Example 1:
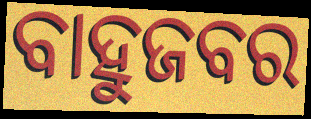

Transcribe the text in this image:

ବାହୁଜବର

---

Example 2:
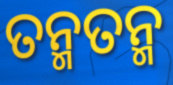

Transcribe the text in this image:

ତନ୍ମତନ୍ମ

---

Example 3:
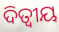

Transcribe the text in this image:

ଦିତ୍ୱୀୟ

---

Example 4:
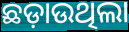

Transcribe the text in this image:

ଛଡ଼ାଉଥିଲା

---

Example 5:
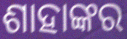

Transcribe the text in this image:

ଶାହାଙ୍କର